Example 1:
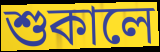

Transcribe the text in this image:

শুকালে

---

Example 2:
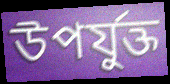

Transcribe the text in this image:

উপৰ্যুক্ত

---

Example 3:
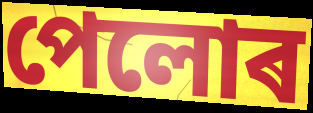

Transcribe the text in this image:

পেলোৰ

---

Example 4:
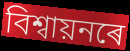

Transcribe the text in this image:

বিশ্বায়নৰে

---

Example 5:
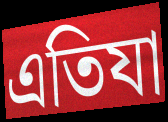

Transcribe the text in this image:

এতিযা